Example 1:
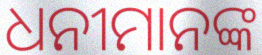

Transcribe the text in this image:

ଧନୀମାନଙ୍କ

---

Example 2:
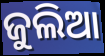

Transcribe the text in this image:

ଜୁଲିଆ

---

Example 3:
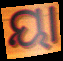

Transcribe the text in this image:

ୟା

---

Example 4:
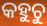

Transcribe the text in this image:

କହୁଚୁ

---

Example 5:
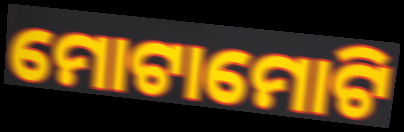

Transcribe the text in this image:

ମୋଟାମୋଟି